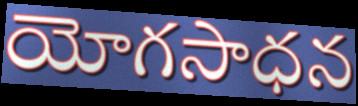
యోగసాధన